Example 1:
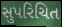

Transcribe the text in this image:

સુપરિચિત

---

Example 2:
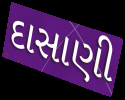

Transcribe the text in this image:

દાસાણી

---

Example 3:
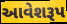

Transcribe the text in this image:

આવેશરૂપ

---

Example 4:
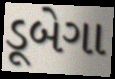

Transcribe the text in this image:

ડૂબેગા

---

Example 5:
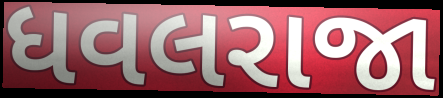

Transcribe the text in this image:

ધવલરાજા